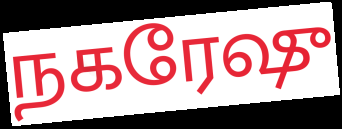
நகரேஷு